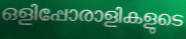
ഒളിപ്പോരാളികളുടെ